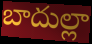
బాదుల్లా